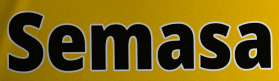
Semasa